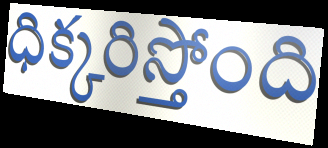
ధిక్కరిస్తోంది